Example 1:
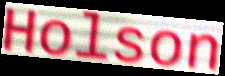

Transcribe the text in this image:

Holson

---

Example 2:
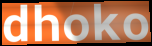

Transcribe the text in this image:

dhoko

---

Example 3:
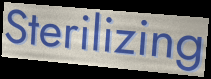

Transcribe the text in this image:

Sterilizing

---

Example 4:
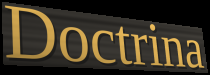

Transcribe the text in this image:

Doctrina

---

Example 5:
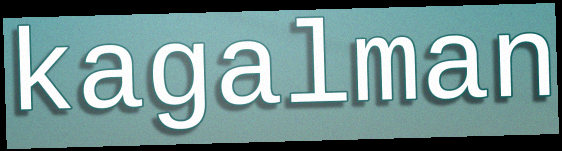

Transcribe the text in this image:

kagalman